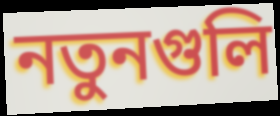
নতুনগুলি